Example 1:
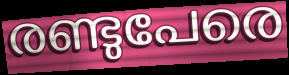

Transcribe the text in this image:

രണ്ടുപേരെ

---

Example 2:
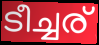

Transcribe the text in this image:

ടീച്ചര്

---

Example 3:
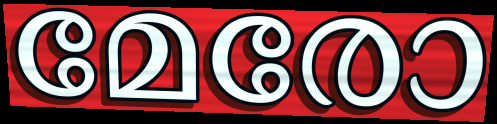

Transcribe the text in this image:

മേരോ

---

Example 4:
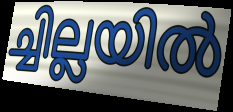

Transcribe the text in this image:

ച്ചില്ലയിൽ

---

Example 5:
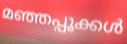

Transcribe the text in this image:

മഞ്ഞപ്പൂക്കൾ